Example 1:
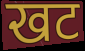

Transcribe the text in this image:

खट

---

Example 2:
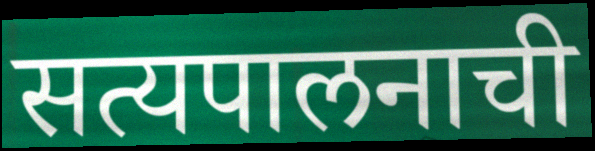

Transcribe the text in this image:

सत्यपालनाची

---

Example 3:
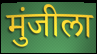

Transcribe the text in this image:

मुंजीला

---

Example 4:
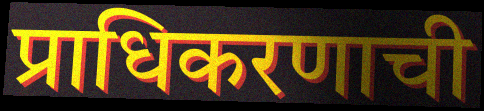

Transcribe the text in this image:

प्राधिकरणाची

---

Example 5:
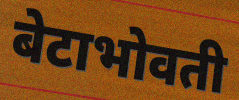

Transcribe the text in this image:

बेटाभोवती